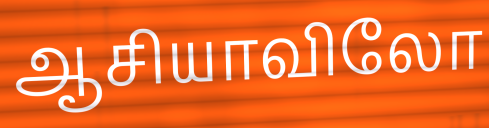
ஆசியாவிலோ